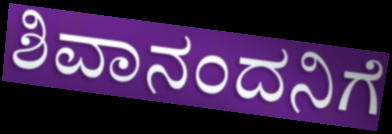
ಶಿವಾನಂದನಿಗೆ